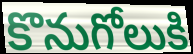
కొనుగోలుకి